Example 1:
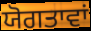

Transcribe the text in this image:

ਯੋਗਤਾਵਾਂ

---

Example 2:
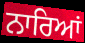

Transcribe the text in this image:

ਨਾਰਿਆਂ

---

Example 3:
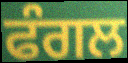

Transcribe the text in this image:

ਫੰਗਲ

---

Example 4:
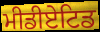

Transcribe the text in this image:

ਮੀਡੀਏਟਿਡ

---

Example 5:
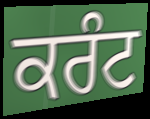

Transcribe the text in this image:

ਕਰੰਟ